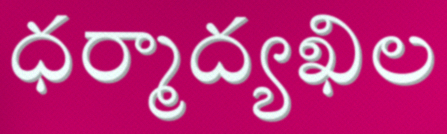
ధర్మాద్యఖిల